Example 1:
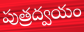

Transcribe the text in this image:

పుత్రద్వయం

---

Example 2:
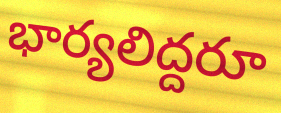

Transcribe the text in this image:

భార్యలిద్దరూ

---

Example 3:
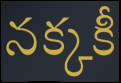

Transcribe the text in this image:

నక్కకీ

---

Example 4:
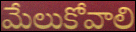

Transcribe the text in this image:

మేలుకోవాలి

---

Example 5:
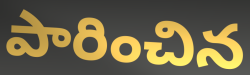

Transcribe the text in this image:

పారించిన